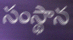
సంస్థాన